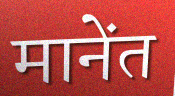
मानेंत